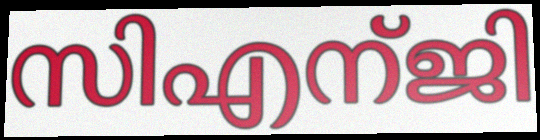
സിഎന്ജി